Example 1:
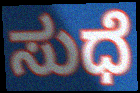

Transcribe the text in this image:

ಸುಧೆ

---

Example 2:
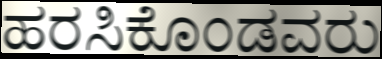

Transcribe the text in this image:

ಹರಸಿಕೊಂಡವರು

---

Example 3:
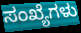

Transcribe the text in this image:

ಸಂಖ್ಯೆಗಳು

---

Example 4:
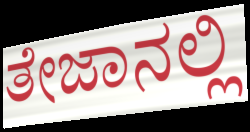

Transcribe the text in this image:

ತೇಜಾನಲ್ಲಿ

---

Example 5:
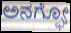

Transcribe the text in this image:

ಅನಗ್ಘೋ